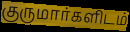
குருமார்களிடம்